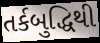
તર્કબુદ્ધિથી